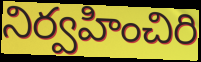
నిర్వహించిరి